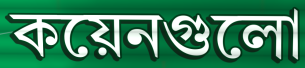
কয়েনগুলো